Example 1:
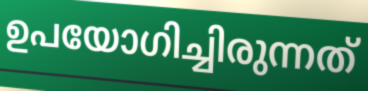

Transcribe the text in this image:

ഉപയോഗിച്ചിരുന്നത്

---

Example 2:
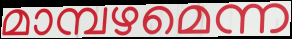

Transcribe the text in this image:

മാമ്പഴമെന്ന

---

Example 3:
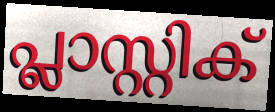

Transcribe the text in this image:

പ്ലാസ്റ്റിക്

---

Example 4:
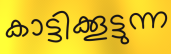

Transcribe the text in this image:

കാട്ടിക്കൂട്ടുന്ന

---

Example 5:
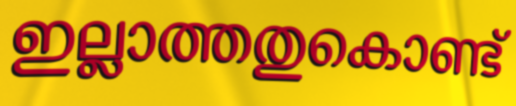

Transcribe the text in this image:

ഇല്ലാത്തതുകൊണ്ട്